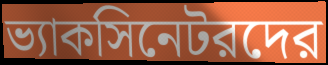
ভ্যাকসিনেটরদের